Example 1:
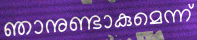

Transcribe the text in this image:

ഞാനുണ്ടാകുമെന്ന്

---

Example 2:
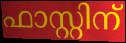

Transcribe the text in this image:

ഫാസ്റ്റിന്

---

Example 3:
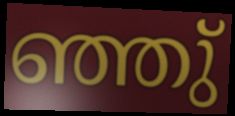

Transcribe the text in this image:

ഞ്ഞു്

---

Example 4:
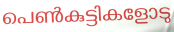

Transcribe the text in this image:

പെൺകുട്ടികളോടു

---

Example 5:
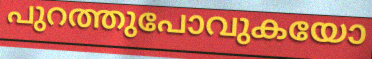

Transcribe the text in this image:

പുറത്തുപോവുകയോ